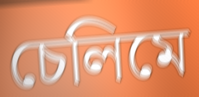
চেলিমে